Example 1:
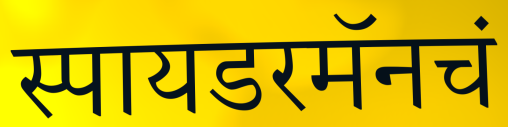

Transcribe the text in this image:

स्पायडरमॅनचं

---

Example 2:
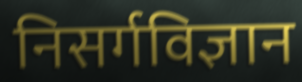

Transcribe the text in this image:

निसर्गविज्ञान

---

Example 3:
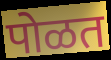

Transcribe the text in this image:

पोळत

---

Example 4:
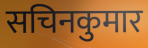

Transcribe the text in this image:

सचिनकुमार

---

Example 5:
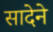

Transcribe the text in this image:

सादेने